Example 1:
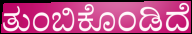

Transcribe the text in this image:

ತುಂಬಿಕೊಂಡಿದೆ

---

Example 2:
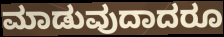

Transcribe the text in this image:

ಮಾಡುವುದಾದರೂ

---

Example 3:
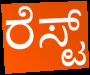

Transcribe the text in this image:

ರೆಸ್ಟ್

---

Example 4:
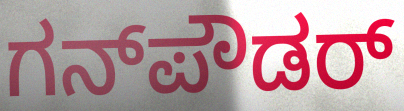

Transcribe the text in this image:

ಗನ್‌ಪೌಡರ್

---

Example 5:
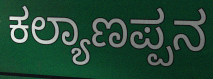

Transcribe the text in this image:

ಕಲ್ಯಾಣಪ್ಪನ